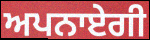
ਅਪਨਾਏਗੀ